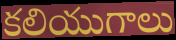
కలియుగాలు